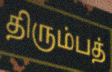
திரும்பத்